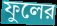
ফুলের